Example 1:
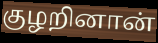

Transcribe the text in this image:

குழறினான்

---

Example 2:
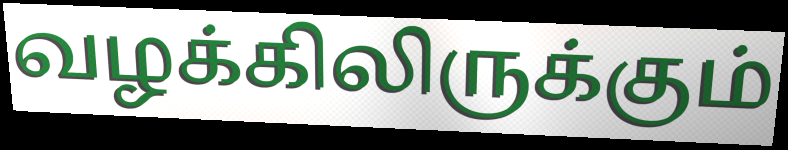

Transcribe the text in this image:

வழக்கிலிருக்கும்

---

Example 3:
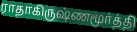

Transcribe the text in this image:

ராதாகிருஷ்ணமூர்த்தி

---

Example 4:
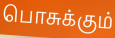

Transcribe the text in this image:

பொசுக்கும்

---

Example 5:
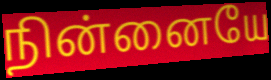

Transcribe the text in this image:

நின்னையே